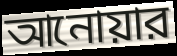
আনোয়ার